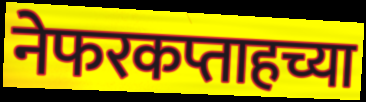
नेफरकप्ताहच्या